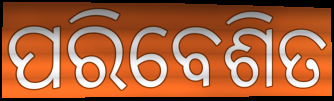
ପରିବେଶିତ